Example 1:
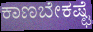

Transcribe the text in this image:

ಕಾಣಬೇಕಷ್ಟೆ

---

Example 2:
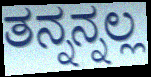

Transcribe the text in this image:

ತನ್ನನ್ನಲ್ಲ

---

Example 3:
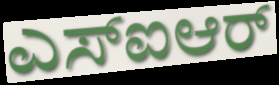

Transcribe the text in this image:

ಎಸ್ಐಆರ್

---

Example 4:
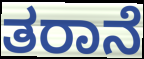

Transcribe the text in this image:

ತರಾನೆ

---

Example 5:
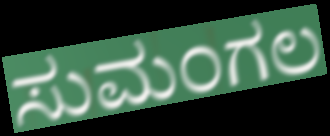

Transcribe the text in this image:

ಸುಮಂಗಲ